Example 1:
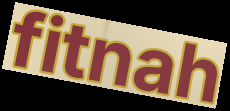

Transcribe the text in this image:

fitnah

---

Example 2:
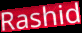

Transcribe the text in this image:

Rashid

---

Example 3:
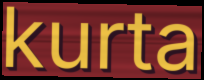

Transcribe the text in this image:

kurta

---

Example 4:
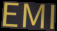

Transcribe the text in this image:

EMI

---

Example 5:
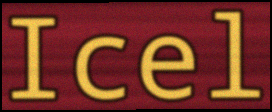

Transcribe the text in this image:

Icel